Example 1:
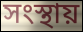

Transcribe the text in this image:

সংস্থায়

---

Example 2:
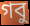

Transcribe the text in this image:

গবু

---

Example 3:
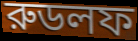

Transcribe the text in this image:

রুডলফ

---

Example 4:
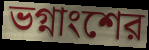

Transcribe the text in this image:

ভগ্নাংশের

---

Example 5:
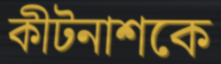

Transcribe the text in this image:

কীটনাশকে